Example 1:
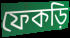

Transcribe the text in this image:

ফেকড়ি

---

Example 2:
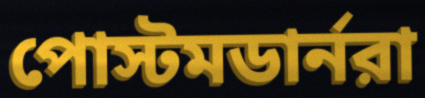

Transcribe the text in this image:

পোস্টমডার্নরা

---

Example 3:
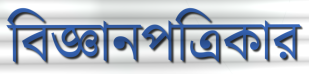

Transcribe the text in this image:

বিজ্ঞানপত্রিকার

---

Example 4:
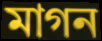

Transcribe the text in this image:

মাগন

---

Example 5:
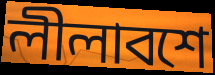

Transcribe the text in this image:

লীলাবশে